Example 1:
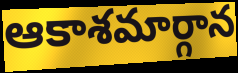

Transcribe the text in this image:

ఆకాశమార్గాన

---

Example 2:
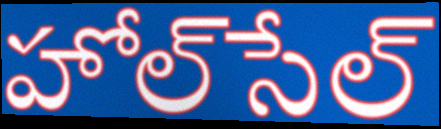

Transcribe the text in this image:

హోల్‌సేల్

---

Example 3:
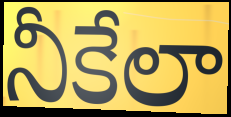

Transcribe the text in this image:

నీకేలా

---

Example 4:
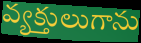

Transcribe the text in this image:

వ్యక్తులుగాను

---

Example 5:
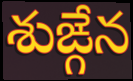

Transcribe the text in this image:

శుఙ్గేన